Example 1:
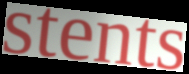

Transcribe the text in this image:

stents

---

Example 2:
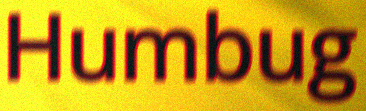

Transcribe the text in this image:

Humbug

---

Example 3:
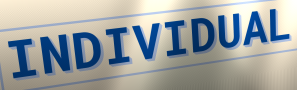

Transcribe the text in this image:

INDIVIDUAL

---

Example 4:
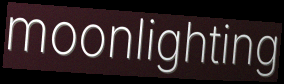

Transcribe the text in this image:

moonlighting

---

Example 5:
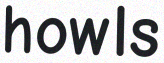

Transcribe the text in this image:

howls